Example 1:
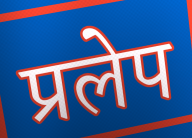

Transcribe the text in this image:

प्रलेप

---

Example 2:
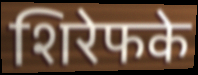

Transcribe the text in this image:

शिरेफके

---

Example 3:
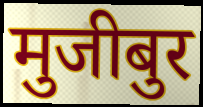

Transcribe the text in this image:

मुजीबुर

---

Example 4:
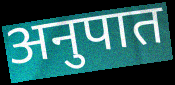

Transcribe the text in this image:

अनुपात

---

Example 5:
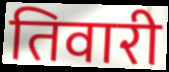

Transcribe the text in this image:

तिवारी